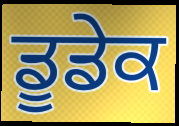
ਡੂਡੇਕ